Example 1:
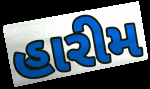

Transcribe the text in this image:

હારીમ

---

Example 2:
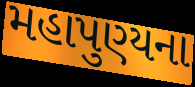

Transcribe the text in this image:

મહાપુણ્યના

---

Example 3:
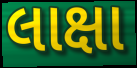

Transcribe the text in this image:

લાક્ષા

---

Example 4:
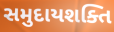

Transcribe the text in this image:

સમુદાયશક્તિ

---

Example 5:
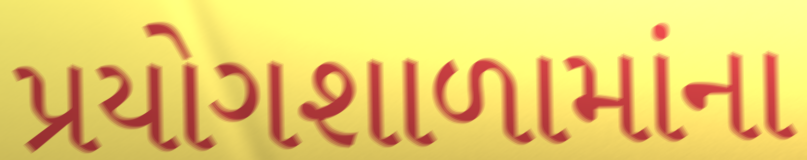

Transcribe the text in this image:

પ્રયોગશાળામાંના